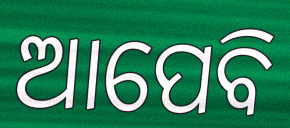
ଆପେବି